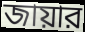
জায়ার